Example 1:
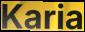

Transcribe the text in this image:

Karia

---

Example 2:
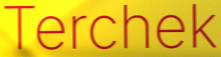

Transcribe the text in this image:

Terchek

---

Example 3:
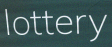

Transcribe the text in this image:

lottery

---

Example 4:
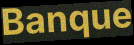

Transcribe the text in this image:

Banque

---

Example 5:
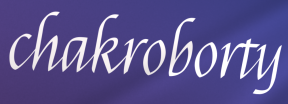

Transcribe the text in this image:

chakroborty